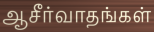
ஆசீர்வாதங்கள்